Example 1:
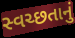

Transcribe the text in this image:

સ્વચ્છતાનું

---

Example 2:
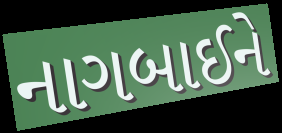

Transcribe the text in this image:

નાગબાઈને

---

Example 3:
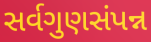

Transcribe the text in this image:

સર્વગુણસંપન્ન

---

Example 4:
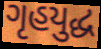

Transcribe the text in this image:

ગૃહયુદ્ધ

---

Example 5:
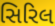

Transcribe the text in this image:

સિરિલ